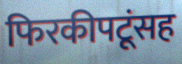
फिरकीपटूंसह